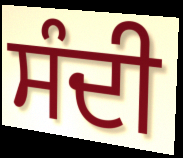
ਸੰਦੀ